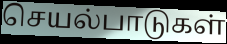
செயல்பாடுகள்